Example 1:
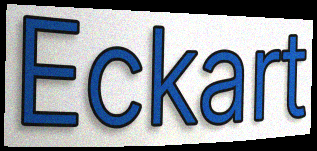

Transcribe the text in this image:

Eckart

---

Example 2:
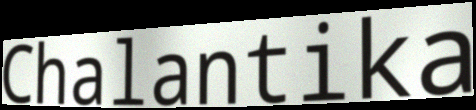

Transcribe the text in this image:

Chalantika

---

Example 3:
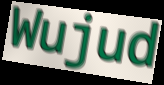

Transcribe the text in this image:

Wujud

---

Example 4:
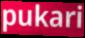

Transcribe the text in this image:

pukari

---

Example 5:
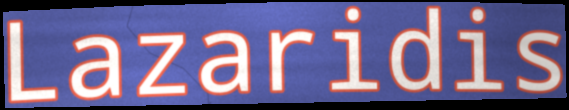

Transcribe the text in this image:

Lazaridis